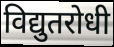
विद्युतरोधी